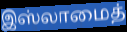
இஸ்லாமைத்